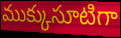
ముక్కుసూటిగా